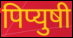
पिप्युषी